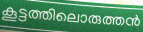
കൂട്ടത്തിലൊരുത്തൻ